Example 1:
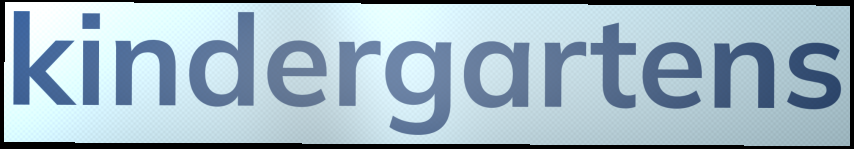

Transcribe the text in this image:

kindergartens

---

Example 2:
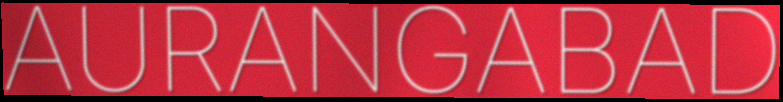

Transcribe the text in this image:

AURANGABAD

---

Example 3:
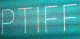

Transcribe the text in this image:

PTIFF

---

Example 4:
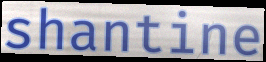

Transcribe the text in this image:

shantine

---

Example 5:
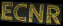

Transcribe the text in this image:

ECNR